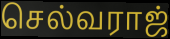
செல்வராஜ்